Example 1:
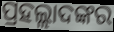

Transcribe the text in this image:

ପ୍ରହଲ୍ଲାଦଙ୍କର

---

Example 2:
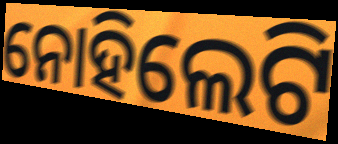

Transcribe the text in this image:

ନୋହିଲେଟି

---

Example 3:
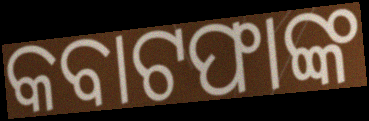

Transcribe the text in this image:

କବାଟଫାଙ୍କ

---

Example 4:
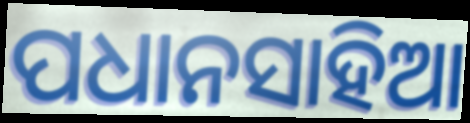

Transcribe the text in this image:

ପଧାନସାହିଆ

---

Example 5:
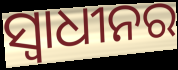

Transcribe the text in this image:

ସ୍ୱାଧୀନର